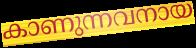
കാണുന്നവനായ